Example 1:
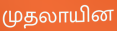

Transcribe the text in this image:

முதலாயின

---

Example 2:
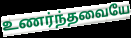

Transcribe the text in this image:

உணர்ந்தவையே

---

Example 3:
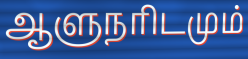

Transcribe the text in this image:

ஆளுநரிடமும்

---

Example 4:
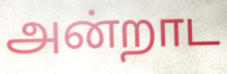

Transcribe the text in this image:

அன்றாட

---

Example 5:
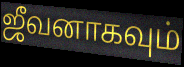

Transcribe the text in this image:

ஜீவனாகவும்